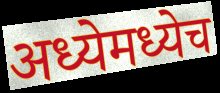
अध्येमध्येच